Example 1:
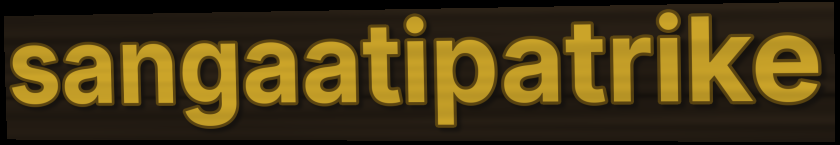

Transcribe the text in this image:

sangaatipatrike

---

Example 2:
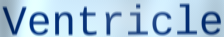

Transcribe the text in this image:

Ventricle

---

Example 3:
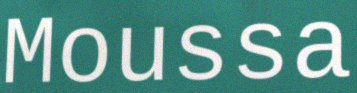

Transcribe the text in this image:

Moussa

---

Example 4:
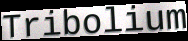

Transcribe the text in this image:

Tribolium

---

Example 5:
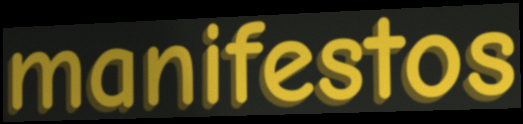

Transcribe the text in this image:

manifestos